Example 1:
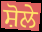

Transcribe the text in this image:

ਸ਼ੋਲੇ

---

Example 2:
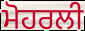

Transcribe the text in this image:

ਮੋਹਰਲੀ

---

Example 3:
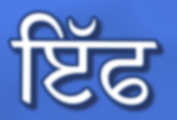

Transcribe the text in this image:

ਇੱਫ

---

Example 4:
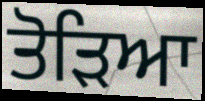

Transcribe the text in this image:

ਤੋਡ਼ਿਆ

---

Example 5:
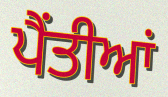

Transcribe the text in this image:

ਪੈਂਤੀਆਂ